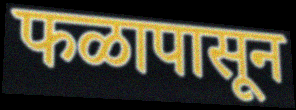
फळापासून